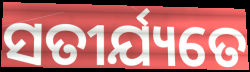
ସତୀର୍ଯ୍ୟତେ